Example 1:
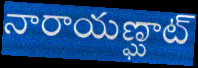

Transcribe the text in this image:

నారాయణ్ఘాట్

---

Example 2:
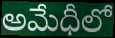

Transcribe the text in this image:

అమేధీలో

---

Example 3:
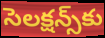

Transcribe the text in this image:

సెలక్షన్స్‌కు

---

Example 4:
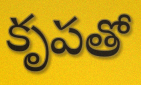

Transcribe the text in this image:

కృపతో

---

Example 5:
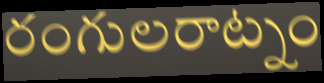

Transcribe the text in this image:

రంగులరాట్నం